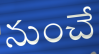
నుంచే